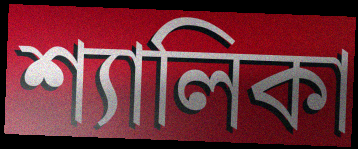
শ্যালিকা